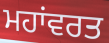
ਮਹਾਂਵਰਤ